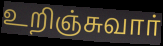
உறிஞ்சுவார்